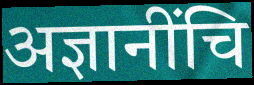
अज्ञानींचि